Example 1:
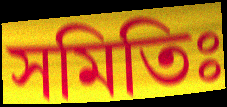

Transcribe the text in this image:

সমিতিঃ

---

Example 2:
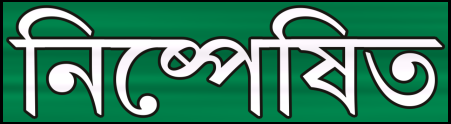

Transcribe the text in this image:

নিষ্পেষিত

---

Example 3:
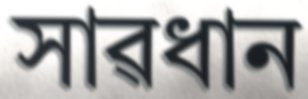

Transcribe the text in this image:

সাৱধান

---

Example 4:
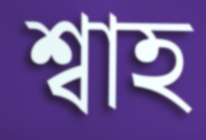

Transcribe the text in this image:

শ্বাহ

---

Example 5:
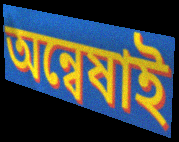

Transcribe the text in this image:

অন্বেষাই